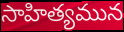
సాహిత్యమున